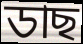
ডাছ